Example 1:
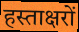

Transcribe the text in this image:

हस्ताक्षरों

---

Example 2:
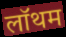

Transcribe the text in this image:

लॉथम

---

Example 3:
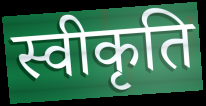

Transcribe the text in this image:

स्वीकृति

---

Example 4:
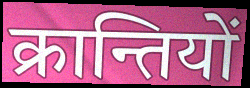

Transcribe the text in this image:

क्रान्तियों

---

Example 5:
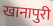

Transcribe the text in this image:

खानापुरी